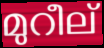
മുറീല്